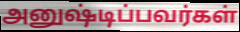
அனுஷ்டிப்பவர்கள்